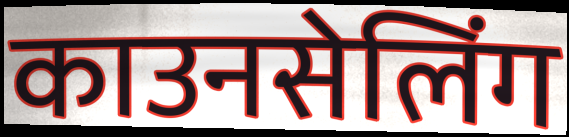
काउनसेलिंग